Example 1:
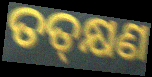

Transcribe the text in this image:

ତତ୍‌କ୍ଷଣ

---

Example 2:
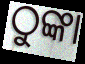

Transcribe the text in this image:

ଠୁଙ୍କା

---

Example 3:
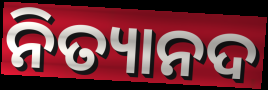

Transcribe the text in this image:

ନିତ୍ୟାନଦ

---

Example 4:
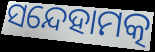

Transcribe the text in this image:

ସନ୍ଦେହାମତ୍କ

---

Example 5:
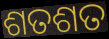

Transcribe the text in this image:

ଶତଶତ